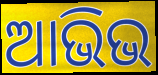
ଆଭିଭ